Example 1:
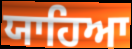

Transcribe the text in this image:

ਯਾਹਿਆ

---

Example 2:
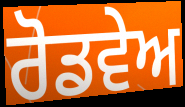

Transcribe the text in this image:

ਰੋਡਵੇਅ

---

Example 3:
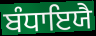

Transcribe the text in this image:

ਬੰਧਾਇਯੈ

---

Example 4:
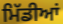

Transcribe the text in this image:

ਮਿੱਡੀਆਂ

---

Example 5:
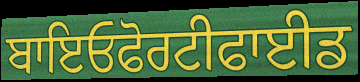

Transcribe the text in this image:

ਬਾਇਓਫੋਰਟੀਫਾਈਡ